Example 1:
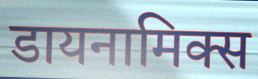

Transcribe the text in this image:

डायनामिक्स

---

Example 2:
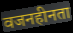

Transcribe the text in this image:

वजनहीनता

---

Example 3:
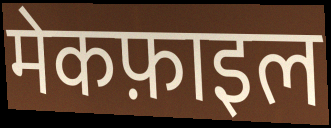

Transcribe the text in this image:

मेकफ़ाइल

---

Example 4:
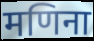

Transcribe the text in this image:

मणिना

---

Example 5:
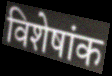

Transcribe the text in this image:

विशेषांक